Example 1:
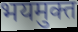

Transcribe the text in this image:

भयमुक्‍त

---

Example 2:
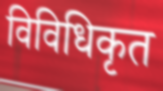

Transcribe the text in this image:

विविधिकृत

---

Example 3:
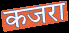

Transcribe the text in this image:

कजरा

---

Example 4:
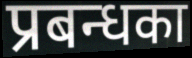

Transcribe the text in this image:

प्रबन्धका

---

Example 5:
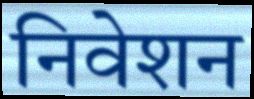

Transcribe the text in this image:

निवेशन